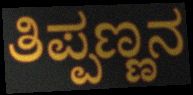
ತಿಪ್ಪಣ್ಣನ